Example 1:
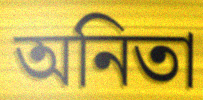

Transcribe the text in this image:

অনিতা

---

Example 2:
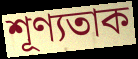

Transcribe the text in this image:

শূণ্যতাক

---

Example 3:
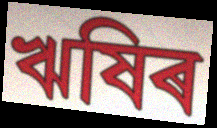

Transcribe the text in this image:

ঋষিৰ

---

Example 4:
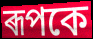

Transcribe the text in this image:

ৰূপকে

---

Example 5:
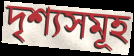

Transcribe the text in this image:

দৃশ্যসমূহ